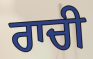
ਰਾਚੀ